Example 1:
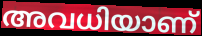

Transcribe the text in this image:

അവധിയാണ്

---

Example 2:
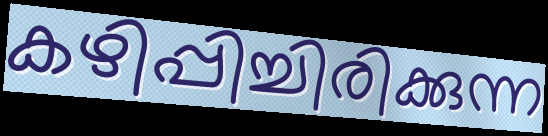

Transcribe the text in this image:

കഴിപ്പിച്ചിരിക്കുന്ന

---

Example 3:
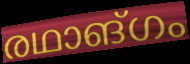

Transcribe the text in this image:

രഥാങ്ഗം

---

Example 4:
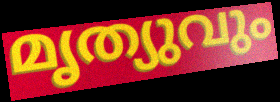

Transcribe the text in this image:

മൃത്യുവും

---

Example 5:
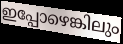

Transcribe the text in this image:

ഇപ്പോഴെങ്കിലും